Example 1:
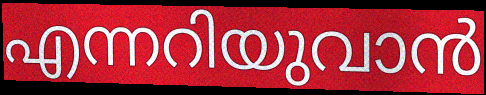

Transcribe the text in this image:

എന്നറിയുവാൻ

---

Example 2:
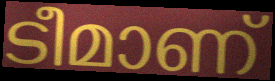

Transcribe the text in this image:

ടീമാണ്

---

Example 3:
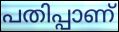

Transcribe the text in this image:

പതിപ്പാണ്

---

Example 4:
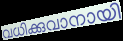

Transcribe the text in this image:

വധിക്കുവാനായി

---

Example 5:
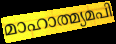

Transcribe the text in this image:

മാഹാത്മ്യമപി